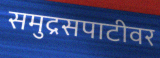
समुद्रसपाटीवर